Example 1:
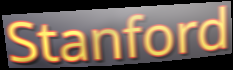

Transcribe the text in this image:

Stanford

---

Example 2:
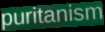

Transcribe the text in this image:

puritanism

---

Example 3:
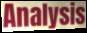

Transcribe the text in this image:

Analysis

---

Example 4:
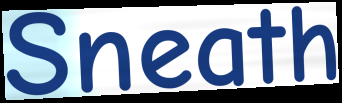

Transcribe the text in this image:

Sneath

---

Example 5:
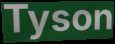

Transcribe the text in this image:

Tyson